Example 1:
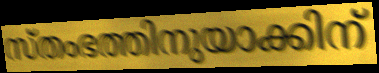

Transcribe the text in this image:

സ്തംഭത്തിനുയാക്കിന്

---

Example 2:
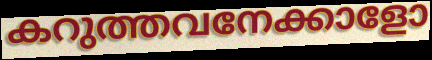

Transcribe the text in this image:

കറുത്തവനേക്കാളോ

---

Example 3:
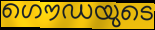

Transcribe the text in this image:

ഗൌഡയുടെ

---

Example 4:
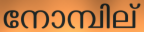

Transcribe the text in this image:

നോമ്പില്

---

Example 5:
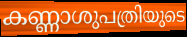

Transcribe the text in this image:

കണ്ണാശുപത്രിയുടെ